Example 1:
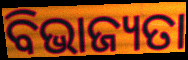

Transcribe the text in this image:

ବିଭାଜ୍ୟତା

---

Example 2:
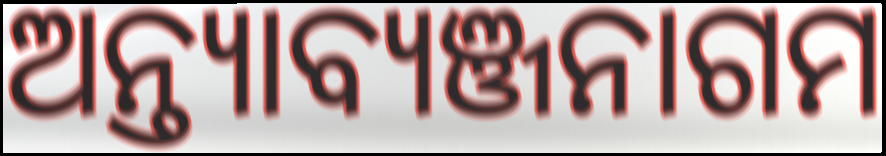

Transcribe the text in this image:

ଅନ୍ତ୍ୟାବ୍ୟଞ୍ଜନାଗମ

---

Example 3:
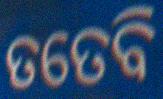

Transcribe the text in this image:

ତତେବି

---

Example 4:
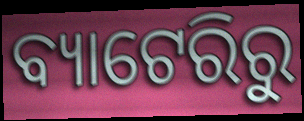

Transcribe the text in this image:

ବ୍ୟାଟେରିରୁ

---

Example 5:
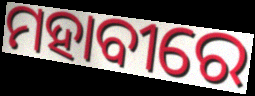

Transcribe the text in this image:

ମହାବୀରେ